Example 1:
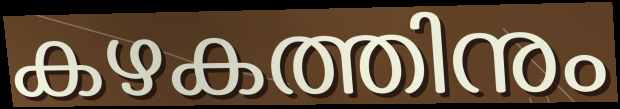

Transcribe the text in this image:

കഴകത്തിനും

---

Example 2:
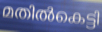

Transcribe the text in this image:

മതിൽകെട്ടി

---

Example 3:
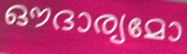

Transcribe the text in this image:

ഔദാര്യമോ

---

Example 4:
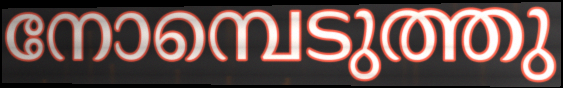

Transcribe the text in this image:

നോമ്പെടുത്തു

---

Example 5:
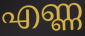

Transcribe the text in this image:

എണ്ണ